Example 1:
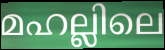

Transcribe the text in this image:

മഹല്ലിലെ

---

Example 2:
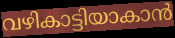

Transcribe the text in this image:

വഴികാട്ടിയാകാൻ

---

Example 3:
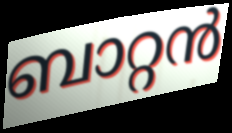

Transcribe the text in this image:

ബാറ്റൻ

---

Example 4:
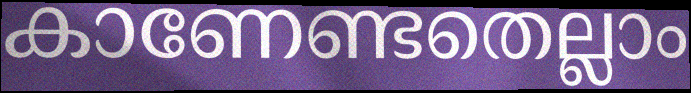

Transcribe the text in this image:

കാണേണ്ടതെല്ലാം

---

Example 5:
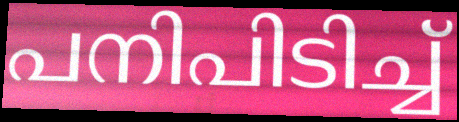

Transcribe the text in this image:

പനിപിടിച്ച്